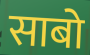
साबो